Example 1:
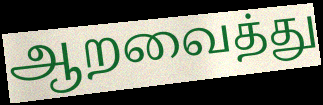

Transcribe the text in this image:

ஆறவைத்து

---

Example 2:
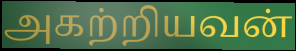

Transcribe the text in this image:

அகற்றியவன்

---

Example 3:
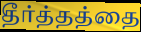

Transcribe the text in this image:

தீர்த்தத்தை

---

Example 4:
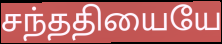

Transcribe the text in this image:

சந்ததியையே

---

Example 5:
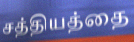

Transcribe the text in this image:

சத்தியத்தை